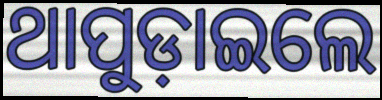
ଥାପୁଡ଼ାଇଲେ